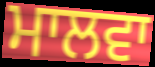
ਮਾਲਵਾ